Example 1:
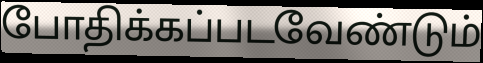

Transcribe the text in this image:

போதிக்கப்படவேண்டும்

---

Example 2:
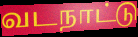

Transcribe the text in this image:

வடநாட்டு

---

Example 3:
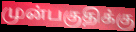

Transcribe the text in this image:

முன்பகுதிக்கு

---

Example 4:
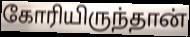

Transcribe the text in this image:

கோரியிருந்தான்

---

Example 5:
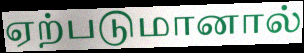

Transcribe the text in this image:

ஏற்படுமானால்